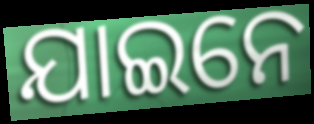
ଯାଇନେ